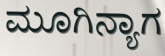
ಮೂಗಿನ್ಯಾಗ